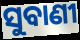
ସୁବାଣୀ